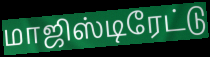
மாஜிஸ்டிரேட்டு